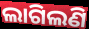
ଲାଗିଲଣି